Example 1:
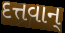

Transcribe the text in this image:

દત્તવાન્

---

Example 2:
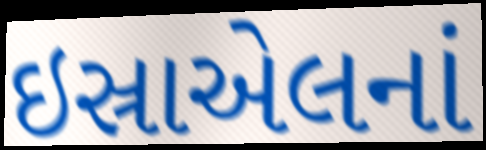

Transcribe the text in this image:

ઇસ્રાએલનાં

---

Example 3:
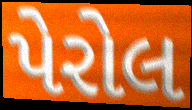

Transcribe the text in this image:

પેરોલ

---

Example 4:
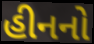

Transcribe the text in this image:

હીનનો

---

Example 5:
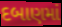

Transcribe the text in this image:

દબાણમાં